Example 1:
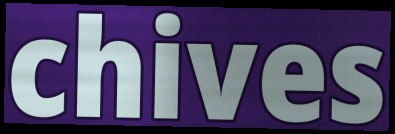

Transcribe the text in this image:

chives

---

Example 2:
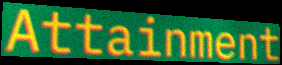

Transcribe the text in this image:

Attainment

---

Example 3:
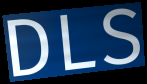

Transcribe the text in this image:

DLS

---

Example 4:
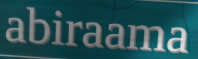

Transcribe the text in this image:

abiraama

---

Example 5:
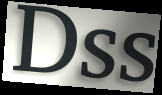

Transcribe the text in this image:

Dss